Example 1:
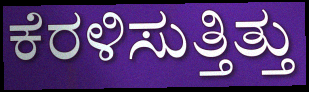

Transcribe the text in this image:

ಕೆರಳಿಸುತ್ತಿತ್ತು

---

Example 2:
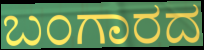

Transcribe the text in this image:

ಬಂಗಾರದ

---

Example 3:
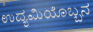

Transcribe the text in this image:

ಉದ್ಯಮಿಯೊಬ್ಬನ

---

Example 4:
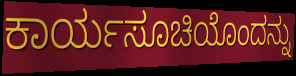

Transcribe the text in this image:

ಕಾರ್ಯಸೂಚಿಯೊಂದನ್ನು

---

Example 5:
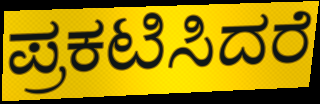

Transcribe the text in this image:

ಪ್ರಕಟಿಸಿದರೆ